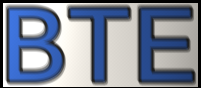
BTE